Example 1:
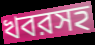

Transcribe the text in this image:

খবরসহ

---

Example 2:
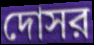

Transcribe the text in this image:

দোসর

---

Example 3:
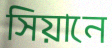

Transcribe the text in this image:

সিয়ানে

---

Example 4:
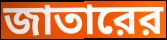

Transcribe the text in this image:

জাতারের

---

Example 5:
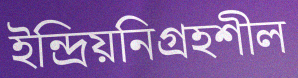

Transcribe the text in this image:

ইন্দ্রিয়নিগ্রহশীল